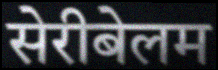
सेरीबेलम